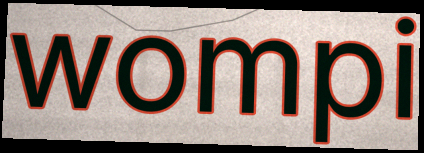
wompi